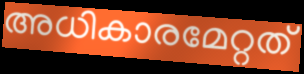
അധികാരമേറ്റത്